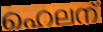
ഹെലന്